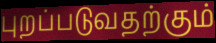
புறப்படுவதற்கும்